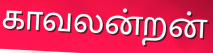
காவலன்றன்